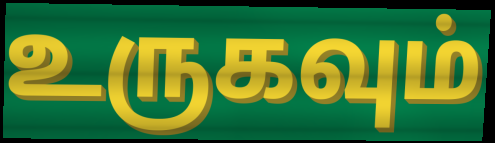
உருகவும்